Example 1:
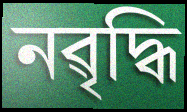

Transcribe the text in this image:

নৱৃদ্ধি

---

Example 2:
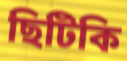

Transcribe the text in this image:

ছিটিকি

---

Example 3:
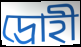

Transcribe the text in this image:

দ্ৰোহী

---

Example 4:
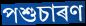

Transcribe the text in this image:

পশুচাৰণ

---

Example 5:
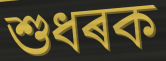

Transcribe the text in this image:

শুধৰক